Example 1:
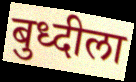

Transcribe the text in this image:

बुध्दीला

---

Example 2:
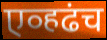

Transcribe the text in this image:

एव्हढंच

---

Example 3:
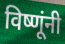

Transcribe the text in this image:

विष्णूंनी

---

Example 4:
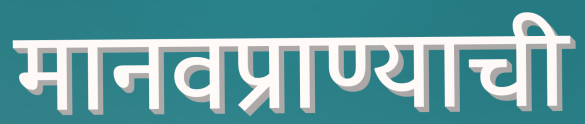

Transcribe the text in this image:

मानवप्राण्याची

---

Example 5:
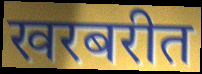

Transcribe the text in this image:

खरबरीत